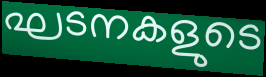
ഘടനകളുടെ